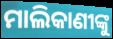
ମାଲିକାଣୀଙ୍କୁ